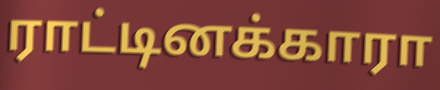
ராட்டினக்காரா